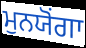
ਮੁਨਯੋਂਗਾ